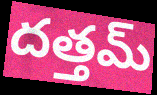
దత్తమ్